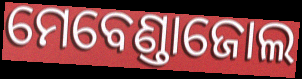
ମେବେଣ୍ଡାଜୋଲ